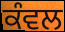
ਕੰਵਲ